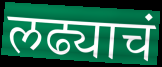
लढ्याचं